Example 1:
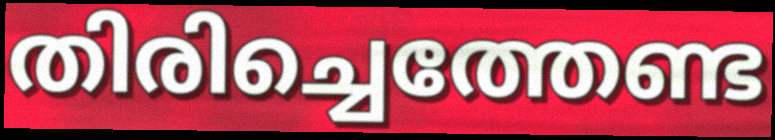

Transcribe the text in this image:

തിരിച്ചെത്തേണ്ട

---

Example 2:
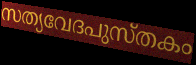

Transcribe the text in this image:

സത്യവേദപുസ്തകം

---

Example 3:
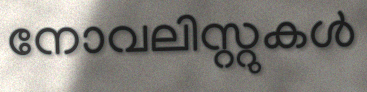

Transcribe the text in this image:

നോവലിസ്റ്റുകൾ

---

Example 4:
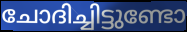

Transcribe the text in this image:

ചോദിച്ചിട്ടുണ്ടോ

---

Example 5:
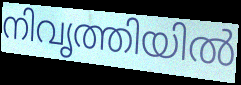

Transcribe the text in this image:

നിവൃത്തിയിൽ